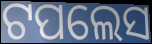
ଟପଲେସ